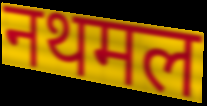
नथमल